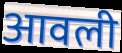
आवली